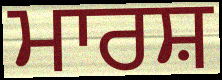
ਮਾਰਸ਼